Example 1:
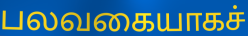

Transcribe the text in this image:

பலவகையாகச்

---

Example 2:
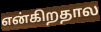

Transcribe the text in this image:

என்கிறதால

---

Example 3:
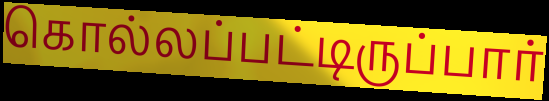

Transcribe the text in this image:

கொல்லப்பட்டிருப்பார்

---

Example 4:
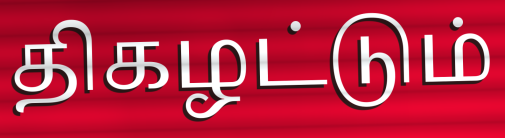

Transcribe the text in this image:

திகழட்டும்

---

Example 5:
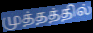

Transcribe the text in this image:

முத்தத்தில்